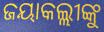
ଜୟାକଲ୍ଲୀଙ୍କୁ